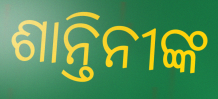
ଶାନ୍ତିନୀଙ୍କ